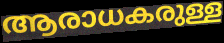
ആരാധകരുള്ള